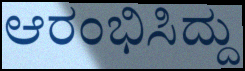
ಆರಂಭಿಸಿದ್ದು